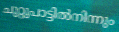
ചുറ്റുപാട്ടിൽനിന്നും